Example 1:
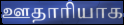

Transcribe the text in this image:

ஊதாரியாக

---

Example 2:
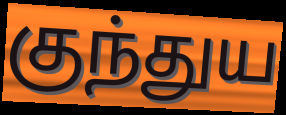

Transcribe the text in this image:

குந்துய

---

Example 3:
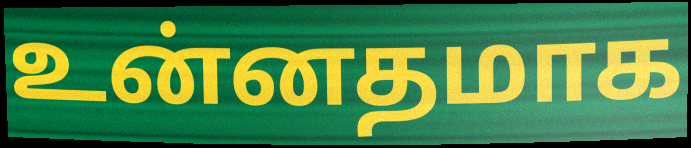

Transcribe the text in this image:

உன்னதமாக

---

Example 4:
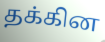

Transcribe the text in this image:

தக்கின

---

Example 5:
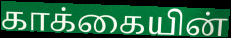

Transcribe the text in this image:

காக்கையின்